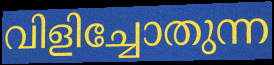
വിളിച്ചോതുന്ന